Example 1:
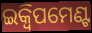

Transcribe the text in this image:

ଇକ୍ୱିପମେଣ୍ଟ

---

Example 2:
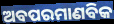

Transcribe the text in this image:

ଅବପରମାଣବିକ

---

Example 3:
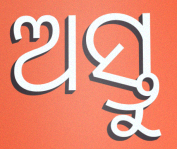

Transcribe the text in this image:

ଅସ୍ତୁ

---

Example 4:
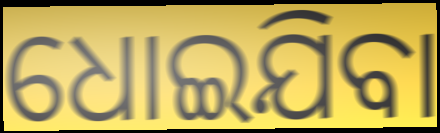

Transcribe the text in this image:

ଧୋଇଯିବା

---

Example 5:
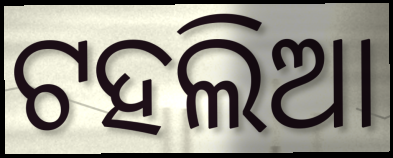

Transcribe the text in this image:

ଟହଲିଆ